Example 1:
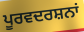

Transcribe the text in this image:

ਪੂਰਵਦਰਸ਼ਨਾਂ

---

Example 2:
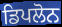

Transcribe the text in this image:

ਡਿਪਲੋਨ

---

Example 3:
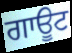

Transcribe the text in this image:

ਗਾਊਟ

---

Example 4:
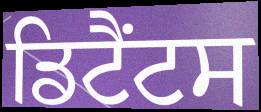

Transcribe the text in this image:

ਡਿਟੈਂਟਸ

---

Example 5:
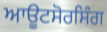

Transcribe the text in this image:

ਆਊਟਸੋਰਸਿੰਗ